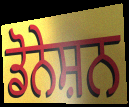
ਡੋਨੇਸ਼ਨ